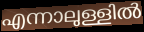
എന്നാലുള്ളിൽ